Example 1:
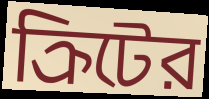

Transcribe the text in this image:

ক্রিটের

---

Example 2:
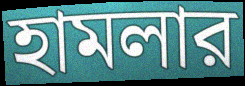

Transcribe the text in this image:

হামলার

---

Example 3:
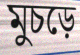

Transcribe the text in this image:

মুচড়ে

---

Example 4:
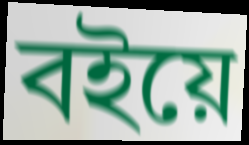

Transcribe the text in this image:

বইয়ে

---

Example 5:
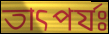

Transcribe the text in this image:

তাৎপর্যঃ